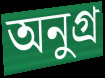
অনুগ্র